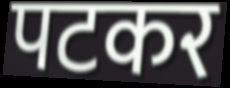
पटकर